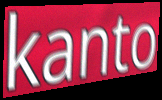
kanto